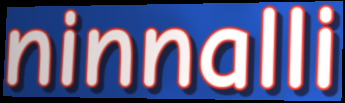
ninnalli